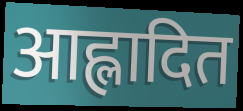
आह्लादित